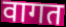
वागत